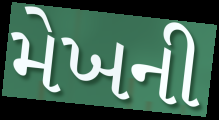
મેખની